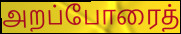
அறப்போரைத்